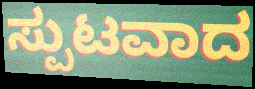
ಸ್ಪುಟವಾದ